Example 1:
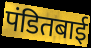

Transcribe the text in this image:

पंडितबाई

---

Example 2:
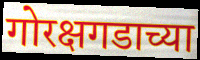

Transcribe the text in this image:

गोरक्षगडाच्या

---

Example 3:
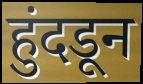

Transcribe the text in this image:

हुंदडून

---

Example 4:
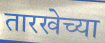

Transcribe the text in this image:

तारखेच्या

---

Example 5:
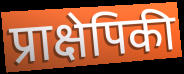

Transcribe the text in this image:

प्राक्षेपिकी